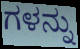
ಗಳನ್ನು